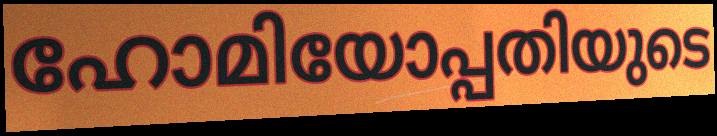
ഹോമിയോപ്പതിയുടെ